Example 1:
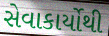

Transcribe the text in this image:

સેવાકાર્યોથી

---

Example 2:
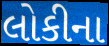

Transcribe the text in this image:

લોકીના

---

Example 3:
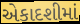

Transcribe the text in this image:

એકાદશીમાં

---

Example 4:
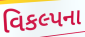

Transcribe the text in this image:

વિકલ્પના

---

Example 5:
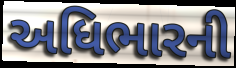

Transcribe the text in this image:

અધિભારની